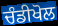
ਚੰਡੀਖੋਲ